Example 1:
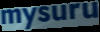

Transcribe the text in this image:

mysuru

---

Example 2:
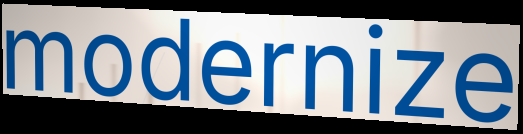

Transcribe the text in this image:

modernize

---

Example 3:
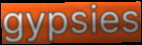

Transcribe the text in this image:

gypsies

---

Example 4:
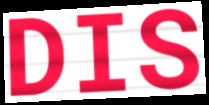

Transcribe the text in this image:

DIS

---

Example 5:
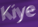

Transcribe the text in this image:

Kiye